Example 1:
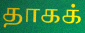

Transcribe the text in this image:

தாகக்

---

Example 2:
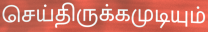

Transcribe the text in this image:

செய்திருக்கமுடியும்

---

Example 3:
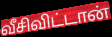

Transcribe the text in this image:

வீசிவிட்டான்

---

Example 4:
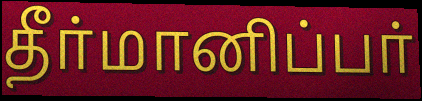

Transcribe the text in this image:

தீர்மானிப்பர்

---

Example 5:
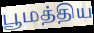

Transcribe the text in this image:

பூமத்திய